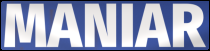
MANIAR